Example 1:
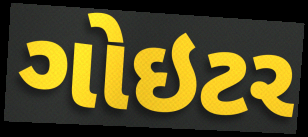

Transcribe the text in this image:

ગોઇટર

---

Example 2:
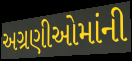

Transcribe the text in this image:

અગ્રણીઓમાંની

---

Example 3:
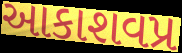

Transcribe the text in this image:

આકાશવપ્ર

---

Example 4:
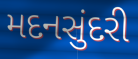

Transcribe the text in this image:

મદનસુંદરી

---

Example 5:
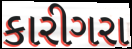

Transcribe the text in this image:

કારીગરા